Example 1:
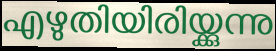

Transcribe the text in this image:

എഴുതിയിരിയ്ക്കുന്നു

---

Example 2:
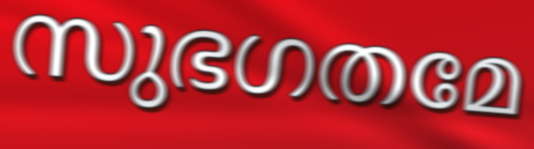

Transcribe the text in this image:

സുഭഗതമേ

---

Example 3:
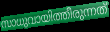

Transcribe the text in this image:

സാധുവായിത്തീരുന്നത്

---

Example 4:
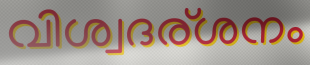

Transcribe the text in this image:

വിശ്വദര്ശനം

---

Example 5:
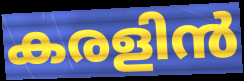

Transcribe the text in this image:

കരളിൻ